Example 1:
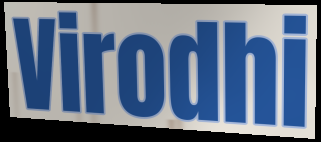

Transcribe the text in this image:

Virodhi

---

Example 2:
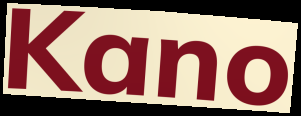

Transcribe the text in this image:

Kano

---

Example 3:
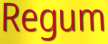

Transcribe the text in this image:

Regum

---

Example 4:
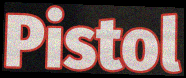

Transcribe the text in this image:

Pistol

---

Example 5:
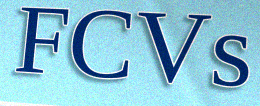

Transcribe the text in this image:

FCVs